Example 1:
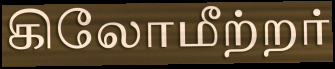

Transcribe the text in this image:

கிலோமீற்றர்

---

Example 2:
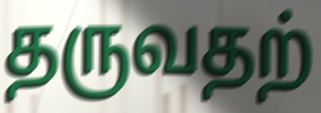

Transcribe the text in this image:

தருவதற்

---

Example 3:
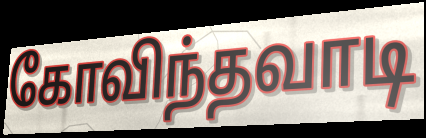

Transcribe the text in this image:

கோவிந்தவாடி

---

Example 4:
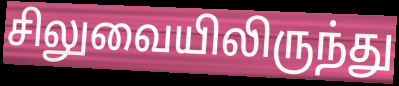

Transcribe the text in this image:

சிலுவையிலிருந்து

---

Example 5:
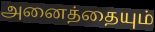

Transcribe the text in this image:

அனைத்தையும்